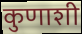
कुणाशी